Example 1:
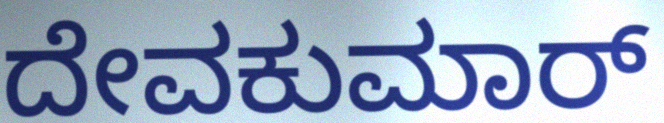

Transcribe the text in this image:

ದೇವಕುಮಾರ್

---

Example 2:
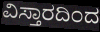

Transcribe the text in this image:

ವಿಸ್ತಾರದಿಂದ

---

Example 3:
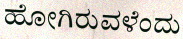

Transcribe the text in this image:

ಹೋಗಿರುವಳೆಂದು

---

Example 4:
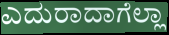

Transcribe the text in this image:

ಎದುರಾದಾಗೆಲ್ಲಾ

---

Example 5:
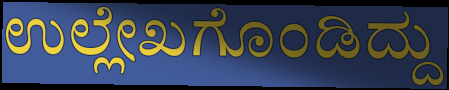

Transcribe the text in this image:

ಉಲ್ಲೇಖಗೊಂಡಿದ್ದು